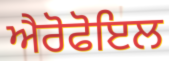
ਐਰੋਫੋਇਲ